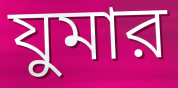
যুমার